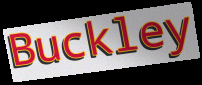
Buckley